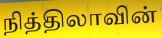
நித்திலாவின்